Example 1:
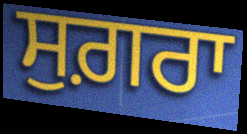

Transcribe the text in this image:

ਸੁਗ਼ਰਾ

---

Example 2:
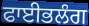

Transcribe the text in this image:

ਫਾਈਭਲੰਗ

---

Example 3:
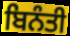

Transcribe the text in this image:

ਬਿਨੰਤੀ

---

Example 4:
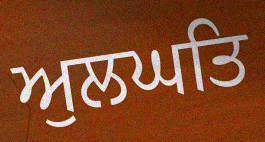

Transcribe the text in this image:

ਅੁਲਘਤਿ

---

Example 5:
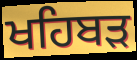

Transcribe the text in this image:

ਖਹਿਬੜ